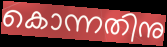
കൊന്നതിനു